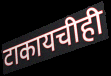
टाकायचीही